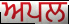
ਅਪਲ